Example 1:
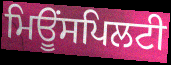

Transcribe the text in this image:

ਮਿਊਂਸਪਿਲਟੀ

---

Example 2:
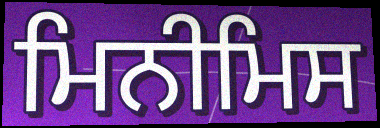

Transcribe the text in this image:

ਮਿਨੀਮਿਸ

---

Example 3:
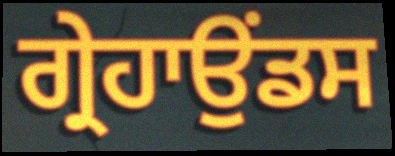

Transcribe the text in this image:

ਗ੍ਰੇਹਾਉਂਡਸ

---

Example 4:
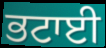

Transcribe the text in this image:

ਭਟਾਈ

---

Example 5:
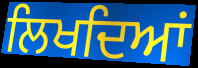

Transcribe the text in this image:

ਲਿਖਦਿਆਂ